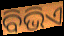
ବିଭିଏ